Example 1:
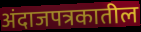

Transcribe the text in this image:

अंदाजपत्रकातील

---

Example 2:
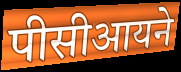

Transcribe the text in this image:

पीसीआयने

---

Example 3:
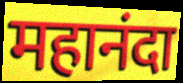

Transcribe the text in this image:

महानंदा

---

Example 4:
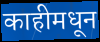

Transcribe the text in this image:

काहीमधून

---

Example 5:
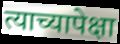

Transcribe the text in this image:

त्याच्यापेक्षा